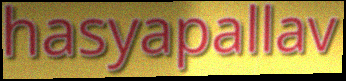
hasyapallav